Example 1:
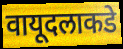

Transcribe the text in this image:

वायूदलाकडे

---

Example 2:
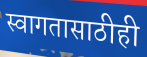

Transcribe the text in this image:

स्वागतासाठीही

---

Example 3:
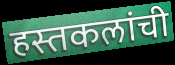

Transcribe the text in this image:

हस्तकलांची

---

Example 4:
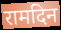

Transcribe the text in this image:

रामदिन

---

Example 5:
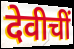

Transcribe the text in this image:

देवीचीं